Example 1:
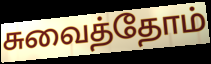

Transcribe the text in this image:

சுவைத்தோம்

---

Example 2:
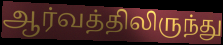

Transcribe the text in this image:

ஆர்வத்திலிருந்து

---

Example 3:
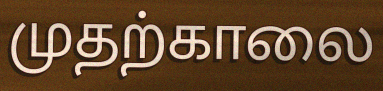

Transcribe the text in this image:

முதற்காலை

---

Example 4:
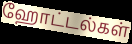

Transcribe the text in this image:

ஹோட்டல்கள்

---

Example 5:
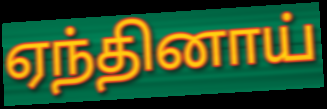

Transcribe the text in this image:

ஏந்தினாய்